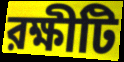
রক্ষীটি